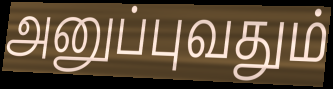
அனுப்புவதும்